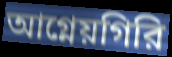
আগ্নেয়গিরি